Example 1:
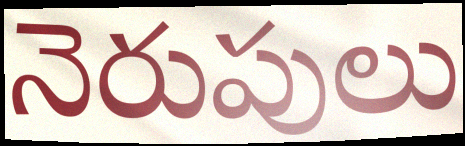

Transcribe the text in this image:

నెరుపులు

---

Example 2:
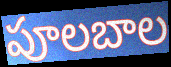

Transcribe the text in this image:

పూలబాల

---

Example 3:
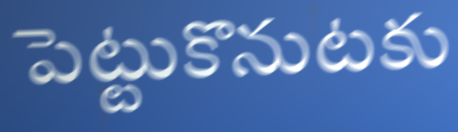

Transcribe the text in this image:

పెట్టుకొనుటకు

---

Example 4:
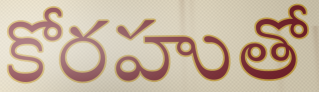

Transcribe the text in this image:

కోరహుతో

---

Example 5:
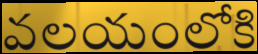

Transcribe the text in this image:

వలయంలోకి